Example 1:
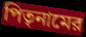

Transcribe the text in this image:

পিতৃনামের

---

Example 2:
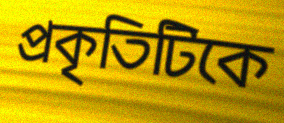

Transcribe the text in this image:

প্রকৃতিটিকে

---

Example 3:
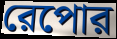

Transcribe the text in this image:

রেপোর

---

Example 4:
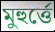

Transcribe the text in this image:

মুহুর্ত্তে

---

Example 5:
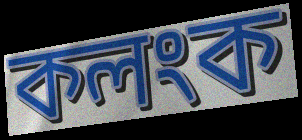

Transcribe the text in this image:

কলংক